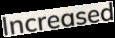
Increased